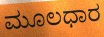
ಮೂಲಧಾರ